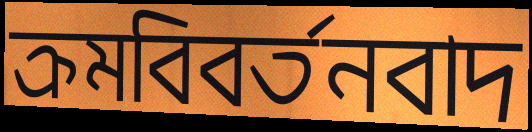
ক্রমবিবর্তনবাদ